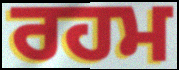
ਰਹਮ